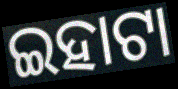
ଇହାଟା